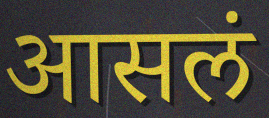
आसलं